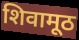
शिवामूठ